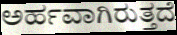
ಅರ್ಹವಾಗಿರುತ್ತದೆ